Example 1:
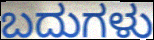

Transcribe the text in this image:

ಬದುಗಳು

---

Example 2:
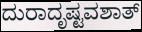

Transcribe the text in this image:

ದುರಾದೃಷ್ಟವಶಾತ್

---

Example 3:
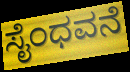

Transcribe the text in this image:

ಸೈಂಧವನೆ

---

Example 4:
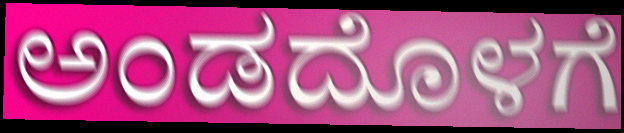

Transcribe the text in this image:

ಅಂಡದೊಳಗೆ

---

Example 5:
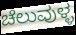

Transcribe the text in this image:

ಚೆಲುವುಳ್ಳ